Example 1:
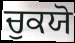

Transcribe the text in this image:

ਚੁਕਯੋ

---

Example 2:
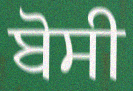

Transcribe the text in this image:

ਬੋਸੀ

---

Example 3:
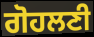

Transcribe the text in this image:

ਗੋਹਲਣੀ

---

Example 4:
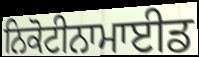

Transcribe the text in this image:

ਨਿਕੋਟੀਨਾਮਾਈਡ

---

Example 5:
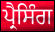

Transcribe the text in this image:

ਪ੍ਰੈਸਿੰਗ